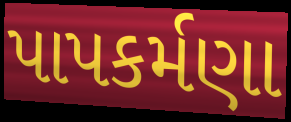
પાપકર્મણા